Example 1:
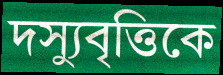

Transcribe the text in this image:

দস্যুবৃত্তিকে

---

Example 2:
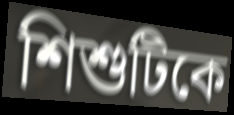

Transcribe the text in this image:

শিশুটিকে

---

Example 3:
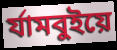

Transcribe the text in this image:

র্যামবুইয়ে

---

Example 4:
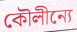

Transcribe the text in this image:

কৌলীন্যে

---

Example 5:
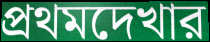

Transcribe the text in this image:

প্রথমদেখার